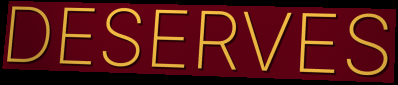
DESERVES